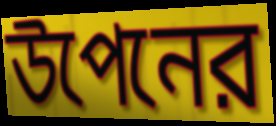
উপেনের